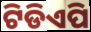
ଟିଡିଏପି